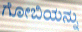
ಗೋಬಿಯನ್ನು